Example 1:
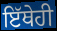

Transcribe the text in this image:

ਇੱਥੇਹੀ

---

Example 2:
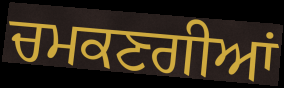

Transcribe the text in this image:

ਚਮਕਣਗੀਆਂ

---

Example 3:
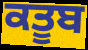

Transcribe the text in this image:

ਕਤੂਬ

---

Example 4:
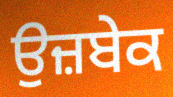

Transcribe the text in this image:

ਉਜ਼ਬੇਕ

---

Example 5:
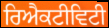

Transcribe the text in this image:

ਰਿਐਕਟੀਵਿਟੀ